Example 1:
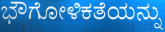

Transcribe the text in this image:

ಭೌಗೋಳಿಕತೆಯನ್ನು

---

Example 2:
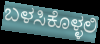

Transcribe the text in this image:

ಬಳಸಿಕೊಳ್ಳಲಿ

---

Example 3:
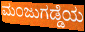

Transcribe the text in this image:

ಮಂಜುಗಡ್ಡೆಯ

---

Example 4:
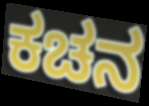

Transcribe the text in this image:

ಕಚನ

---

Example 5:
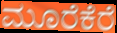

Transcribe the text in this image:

ಮೂರೆಕೆರೆ